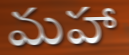
మహా